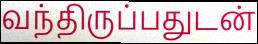
வந்திருப்பதுடன்